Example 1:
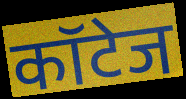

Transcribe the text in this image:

कॉटेज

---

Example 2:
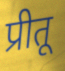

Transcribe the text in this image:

प्रीतू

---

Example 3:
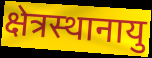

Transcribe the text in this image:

क्षेत्रस्थानायु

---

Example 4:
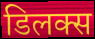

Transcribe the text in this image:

डिलक्स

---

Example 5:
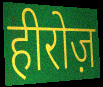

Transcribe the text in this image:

हीरोज़